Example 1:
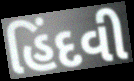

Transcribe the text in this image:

હિંદવી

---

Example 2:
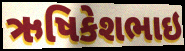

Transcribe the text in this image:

ઋષિકેશભાઇ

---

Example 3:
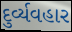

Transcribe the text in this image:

દુર્વ્યવહાર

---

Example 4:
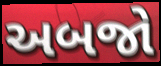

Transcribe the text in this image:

અબજો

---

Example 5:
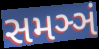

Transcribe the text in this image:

સમઞ્ઞં